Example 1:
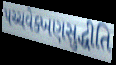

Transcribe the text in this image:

પચ્ચવેક્ખણસુદ્ધીતિ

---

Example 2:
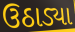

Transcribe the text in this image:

ઉઠાડ્યા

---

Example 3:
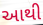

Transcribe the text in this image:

આથી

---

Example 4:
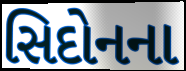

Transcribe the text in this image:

સિદોનના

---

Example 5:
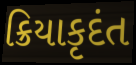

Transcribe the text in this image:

ક્રિયાકૃદંત